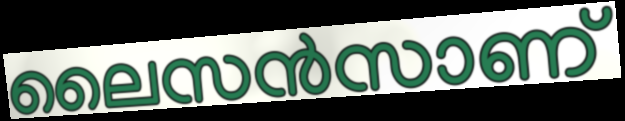
ലൈസൻസാണ്